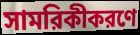
সামরিকীকরণে